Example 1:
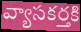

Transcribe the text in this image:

వ్యాసకర్తకి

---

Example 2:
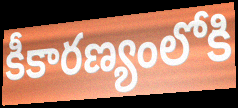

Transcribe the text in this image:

కీకారణ్యంలోకి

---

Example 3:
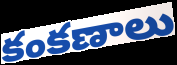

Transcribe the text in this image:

కంకణాలు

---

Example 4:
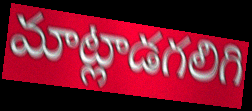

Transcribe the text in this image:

మాట్లాడగలిగి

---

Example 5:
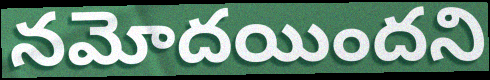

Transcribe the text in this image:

నమోదయిందని